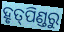
ହୃତ୍‌ପିଣ୍ଡରୁ